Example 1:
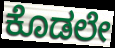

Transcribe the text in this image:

ಕೊಡಲೇ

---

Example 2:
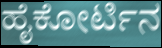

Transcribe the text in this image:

ಹೈಕೋರ್ಟಿನ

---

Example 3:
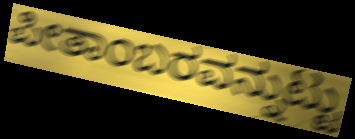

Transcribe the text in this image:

ಪೀತಾಂಬರವನ್ನುಟ್ಟು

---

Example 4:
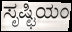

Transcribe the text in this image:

ಸೃಷ್ಟಿಯಂ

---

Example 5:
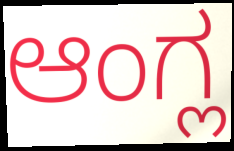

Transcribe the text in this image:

ಆಂಗ್ಲ